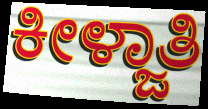
ಕೀಳ್ಜಾತಿ